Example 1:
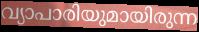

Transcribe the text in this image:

വ്യാപാരിയുമായിരുന്ന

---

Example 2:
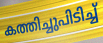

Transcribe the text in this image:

കത്തിച്ചുപിടിച്ച്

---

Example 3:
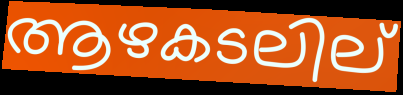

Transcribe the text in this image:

ആഴകടലില്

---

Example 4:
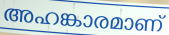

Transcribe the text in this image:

അഹങ്കാരമാണ്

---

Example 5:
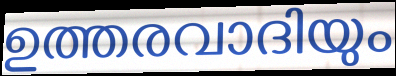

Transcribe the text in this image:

ഉത്തരവാദിയും